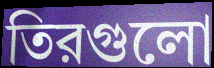
তিরগুলো